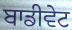
ਬਾਡੀਵੇਟ